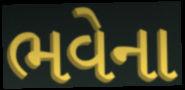
ભવેના